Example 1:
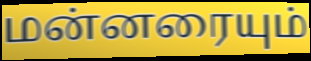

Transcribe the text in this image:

மன்னரையும்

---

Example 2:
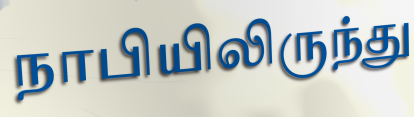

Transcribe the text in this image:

நாபியிலிருந்து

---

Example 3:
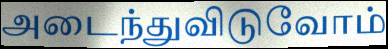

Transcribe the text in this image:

அடைந்துவிடுவோம்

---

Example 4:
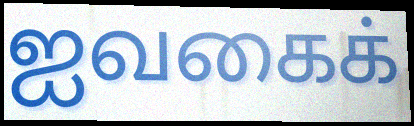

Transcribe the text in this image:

ஐவகைக்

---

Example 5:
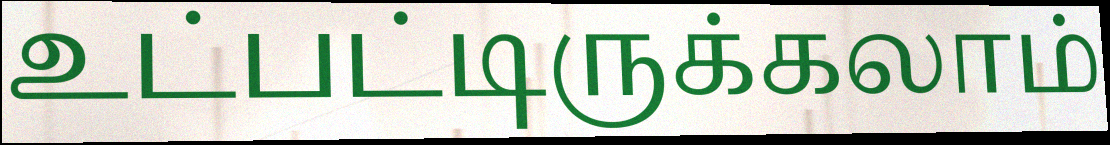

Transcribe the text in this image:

உட்பட்டிருக்கலாம்